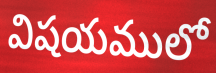
విషయములో